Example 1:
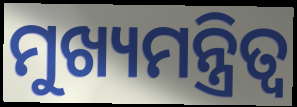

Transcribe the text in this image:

ମୁଖ୍ୟମନ୍ତ୍ରିତ୍ବ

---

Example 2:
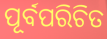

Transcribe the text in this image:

ପୂର୍ବପରିଚିତ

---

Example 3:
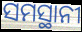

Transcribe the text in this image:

ସମସ୍ଥାନୀ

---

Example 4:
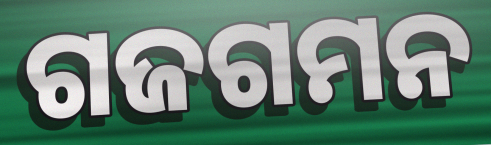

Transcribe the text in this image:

ଗଜଗମନ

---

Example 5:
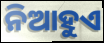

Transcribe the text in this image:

ନିଆହୁଏ